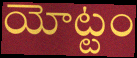
యోట్టం